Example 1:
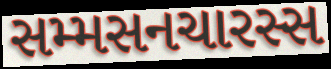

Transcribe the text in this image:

સમ્મસનચારસ્સ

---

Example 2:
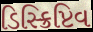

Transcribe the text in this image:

ડિસ્ક્રિપ્ટિવ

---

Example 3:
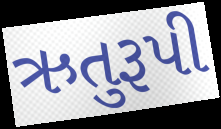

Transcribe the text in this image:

ઋતુરૂપી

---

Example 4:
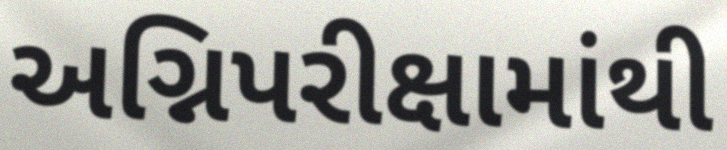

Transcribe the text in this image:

અગ્નિપરીક્ષામાંથી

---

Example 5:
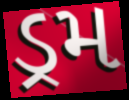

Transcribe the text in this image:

ડ્રમ